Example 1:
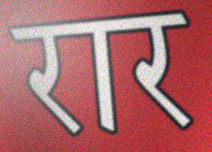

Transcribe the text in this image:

रार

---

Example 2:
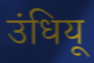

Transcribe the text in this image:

उंधियू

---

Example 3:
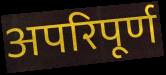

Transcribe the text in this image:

अपरिपूर्ण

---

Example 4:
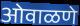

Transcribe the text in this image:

ओवाळणे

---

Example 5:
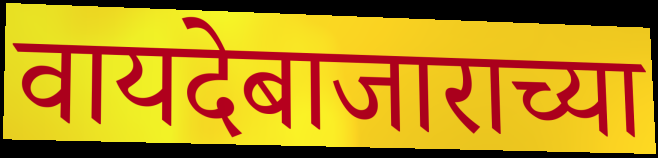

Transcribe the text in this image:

वायदेबाजाराच्या